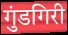
गुंडगिरी